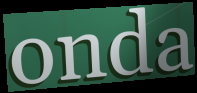
onda